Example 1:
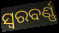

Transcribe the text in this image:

ସ୍ୱରବର୍ଣ୍ଣ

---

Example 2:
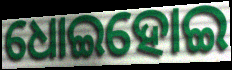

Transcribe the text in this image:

ଧୋଇହୋଇ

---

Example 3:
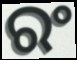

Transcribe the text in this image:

ରଂ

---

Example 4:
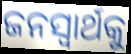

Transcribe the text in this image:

ଜନସ୍ବାର୍ଥକୁ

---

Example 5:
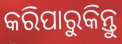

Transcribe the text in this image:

କରିପାରୁକିନ୍ତୁ